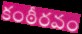
కంఠీరవం